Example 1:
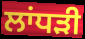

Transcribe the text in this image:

ਲਾਂਧੜੀ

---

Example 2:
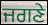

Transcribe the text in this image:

ਜਗਣੇ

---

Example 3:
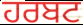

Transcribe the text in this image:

ਹਰਬਟ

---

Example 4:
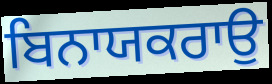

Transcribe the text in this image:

ਬਿਨਾਯਕਰਾਉ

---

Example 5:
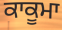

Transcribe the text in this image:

ਕਾਕੂਮਾ